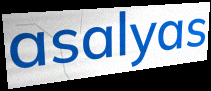
asalyas